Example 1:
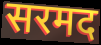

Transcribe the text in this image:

सरमद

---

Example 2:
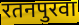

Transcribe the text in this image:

रतनपुरवा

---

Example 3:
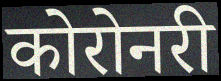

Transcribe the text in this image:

कोरोनरी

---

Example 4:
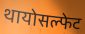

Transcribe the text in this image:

थायोसल्फेट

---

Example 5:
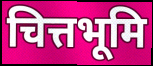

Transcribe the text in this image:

चित्तभूमि